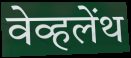
वेव्हलेंथ